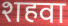
शहवा